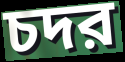
চদর